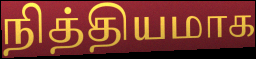
நித்தியமாக